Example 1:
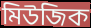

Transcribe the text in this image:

মিউজিক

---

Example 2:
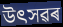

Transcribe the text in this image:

উৎসৱৰ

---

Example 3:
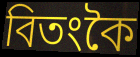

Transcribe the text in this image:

বিতংকৈ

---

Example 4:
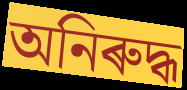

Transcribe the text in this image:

অনিৰুদ্ধ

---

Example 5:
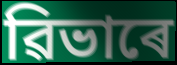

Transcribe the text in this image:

ৱিভাৰে